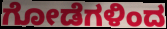
ಗೋಡೆಗಳಿಂದ